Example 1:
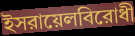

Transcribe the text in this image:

ইসরায়েলবিরোধী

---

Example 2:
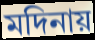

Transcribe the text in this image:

মদিনায়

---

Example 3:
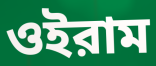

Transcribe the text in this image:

ওইরাম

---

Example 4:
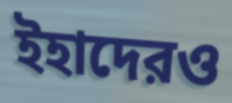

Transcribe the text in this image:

ইহাদেরও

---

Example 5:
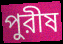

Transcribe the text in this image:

পুরীষ